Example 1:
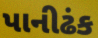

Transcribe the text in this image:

પાનીઢંક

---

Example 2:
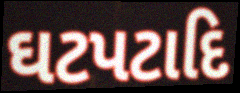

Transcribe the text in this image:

ઘટપટાદિ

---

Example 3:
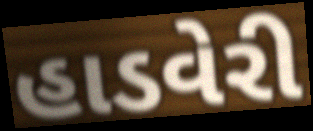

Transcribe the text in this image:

હાડવેરી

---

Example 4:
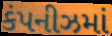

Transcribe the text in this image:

કંપનીઝમાં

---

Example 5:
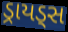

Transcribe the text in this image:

ડ્રાયડ્સ